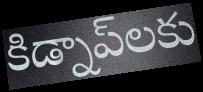
కిడ్నాప్‌లకు